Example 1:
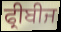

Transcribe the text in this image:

ਫ੍ਰੀਬੀਜ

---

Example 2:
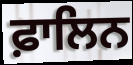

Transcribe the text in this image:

ਫ਼ਾਲਿਨ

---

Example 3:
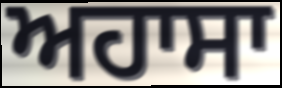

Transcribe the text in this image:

ਅਹਾਸਾ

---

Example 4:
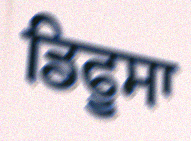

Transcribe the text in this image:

ਡਿਫੂਸਾ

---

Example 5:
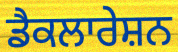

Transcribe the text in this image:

ਡੈਕਲਾਰੇਸ਼ਨ